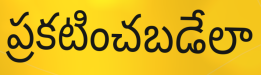
ప్రకటించబడేలా